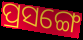
ପ୍ରସଙ୍ଗେ